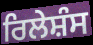
ਰਿਲੇਸ਼ੰਸ